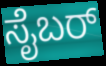
ಸೈಬರ್